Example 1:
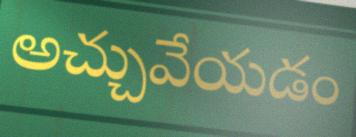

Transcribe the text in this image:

అచ్చువేయడం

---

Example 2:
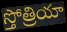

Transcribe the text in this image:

స్తోత్రియా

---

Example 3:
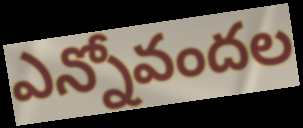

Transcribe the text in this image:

ఎన్నోవందల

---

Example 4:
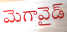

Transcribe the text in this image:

మెగావైడ్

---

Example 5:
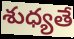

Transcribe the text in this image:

శుధ్యతే